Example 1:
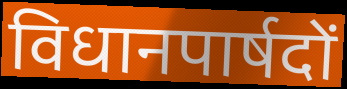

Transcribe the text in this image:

विधानपार्षदों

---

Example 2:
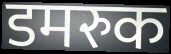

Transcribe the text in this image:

डमरुक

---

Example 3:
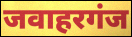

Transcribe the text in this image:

जवाहरगंज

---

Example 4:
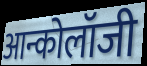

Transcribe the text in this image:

आन्कोलॉजी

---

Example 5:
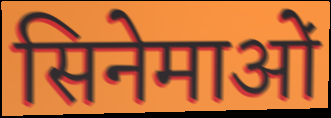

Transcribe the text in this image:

सिनेमाओं